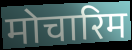
मोचारिम